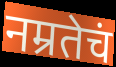
नम्रतेचं